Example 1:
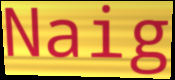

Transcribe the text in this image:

Naig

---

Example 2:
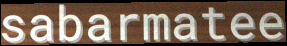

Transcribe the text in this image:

sabarmatee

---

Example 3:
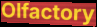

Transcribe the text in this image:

Olfactory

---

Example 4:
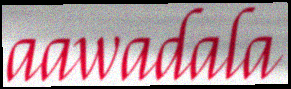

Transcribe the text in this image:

aawadala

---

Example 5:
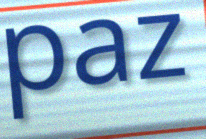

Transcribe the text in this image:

paz